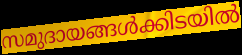
സമുദായങ്ങൾക്കിടയിൽ